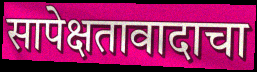
सापेक्षतावादाचा